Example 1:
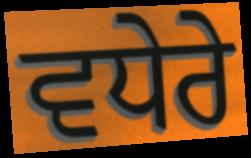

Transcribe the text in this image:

ਵਧੇਰੇ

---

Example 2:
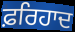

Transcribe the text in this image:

ਫ਼ਰਿਹਾਦ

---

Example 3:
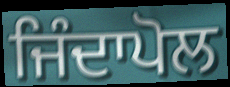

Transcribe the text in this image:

ਜਿੰਦਾਪੋਲ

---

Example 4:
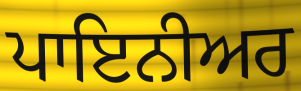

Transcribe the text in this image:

ਪਾਇਨੀਅਰ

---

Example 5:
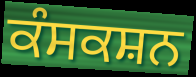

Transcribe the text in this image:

ਕੰਸਕਸ਼ਨ